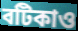
বটিকাও